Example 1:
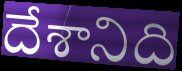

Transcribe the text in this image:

దేశానిది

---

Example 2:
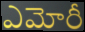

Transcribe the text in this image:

ఎమోరీ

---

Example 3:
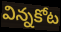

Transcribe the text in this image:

విన్నకోట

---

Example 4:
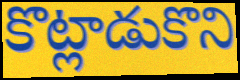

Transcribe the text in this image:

కొట్లాడుకొని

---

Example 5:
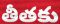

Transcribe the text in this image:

తీతకు